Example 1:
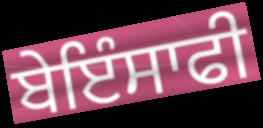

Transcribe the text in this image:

ਬੇਇੰਸਾਫੀ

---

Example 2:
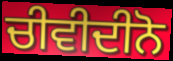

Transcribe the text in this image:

ਚੀਵੀਦੀਨੋ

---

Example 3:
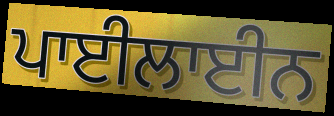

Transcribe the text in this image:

ਪਾਈਲਾਈਨ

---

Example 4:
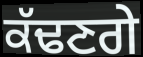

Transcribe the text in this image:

ਕੱਢਣਗੇ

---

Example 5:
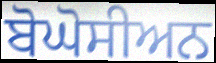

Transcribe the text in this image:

ਬੋਘੋਸੀਅਨ